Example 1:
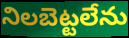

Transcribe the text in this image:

నిలబెట్టలేను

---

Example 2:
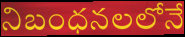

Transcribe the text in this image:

నిబంధనలలోనే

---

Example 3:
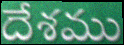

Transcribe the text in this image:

దేశము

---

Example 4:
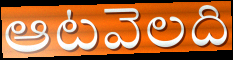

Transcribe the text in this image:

ఆటవెలది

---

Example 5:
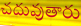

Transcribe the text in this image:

చదువుతారు